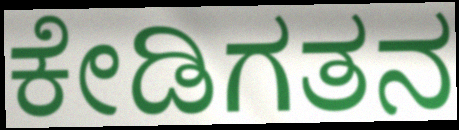
ಕೇಡಿಗತನ